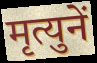
मृत्युनें